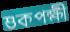
শুকপক্ষী